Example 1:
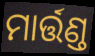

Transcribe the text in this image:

ମାର୍ତ୍ତଣ୍ଡ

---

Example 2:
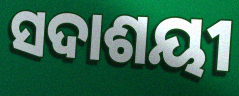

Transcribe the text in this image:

ସଦାଶୟୀ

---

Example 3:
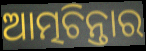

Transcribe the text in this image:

ଆତ୍ମଚିନ୍ତାର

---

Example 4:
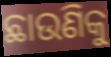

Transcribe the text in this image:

ଛାଉଣିକୁ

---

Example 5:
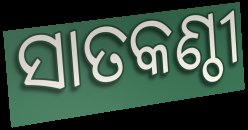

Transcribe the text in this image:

ସାତକଣ୍ଠୀ